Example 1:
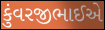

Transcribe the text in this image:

કુંવરજીભાઈએ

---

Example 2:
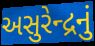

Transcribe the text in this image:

અસુરેન્દ્રનું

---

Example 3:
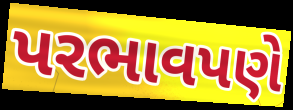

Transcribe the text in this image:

પરભાવપણે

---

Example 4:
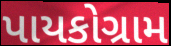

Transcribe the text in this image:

પાયકોગ્રામ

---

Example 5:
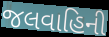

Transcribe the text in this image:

જલવાહિની